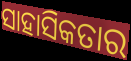
ସାହାସିକତାର